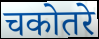
चकोतरे